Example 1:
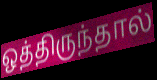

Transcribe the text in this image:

ஒத்திருந்தால்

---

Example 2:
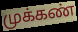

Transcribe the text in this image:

முக்கண்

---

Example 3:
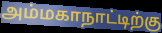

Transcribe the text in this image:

அம்மகாநாட்டிற்கு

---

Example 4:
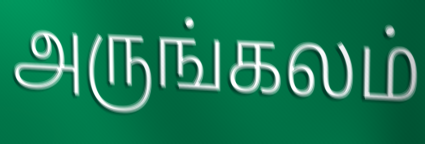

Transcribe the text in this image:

அருங்கலம்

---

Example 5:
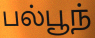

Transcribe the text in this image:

பல்பூந்